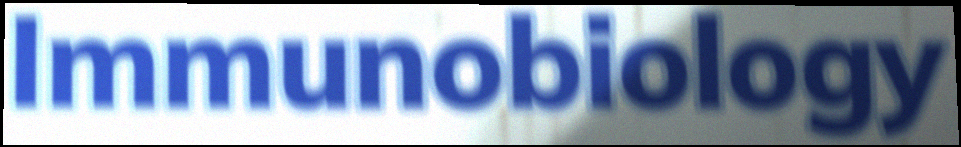
Immunobiology